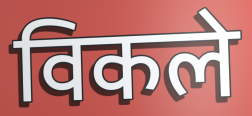
विकले